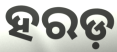
ହରଡ଼